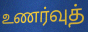
உணர்வுத்